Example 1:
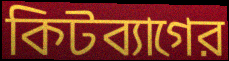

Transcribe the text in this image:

কিটব্যাগের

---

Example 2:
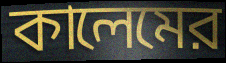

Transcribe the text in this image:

কালেমের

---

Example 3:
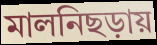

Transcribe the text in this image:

মালনিছড়ায়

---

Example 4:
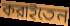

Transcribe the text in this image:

করাইতেন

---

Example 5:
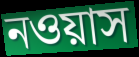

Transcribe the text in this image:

নওয়াস